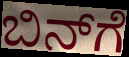
ಬಿನ್‌ಗೆ